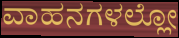
ವಾಹನಗಳಲ್ಲೋ